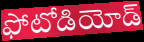
ఫోటోడియోడ్